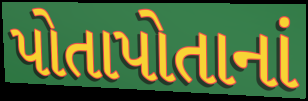
પોતાપોતાનાં